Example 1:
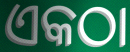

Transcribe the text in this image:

ଏକଠା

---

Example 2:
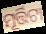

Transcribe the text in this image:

ମୂର୍ତ୍ତିଟା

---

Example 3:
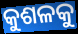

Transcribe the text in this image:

କୁଶଳକୁ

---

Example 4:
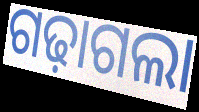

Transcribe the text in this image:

ଗଢ଼ାଗଲା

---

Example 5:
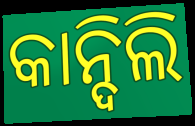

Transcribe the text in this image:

କାନ୍ଦିଲି